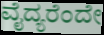
ವೈದ್ಯರೆಂದೇ